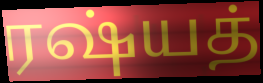
ரஷ்யத்